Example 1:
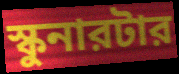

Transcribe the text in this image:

স্কুনারটার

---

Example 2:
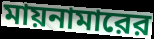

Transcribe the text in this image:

মায়নামারের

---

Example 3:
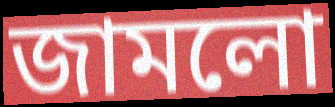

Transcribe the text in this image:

জামলো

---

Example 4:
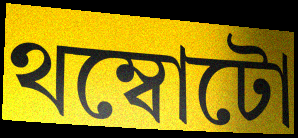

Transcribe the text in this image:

থম্বোটো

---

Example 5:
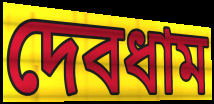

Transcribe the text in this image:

দেবধাম